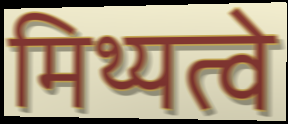
मिथ्यत्वे